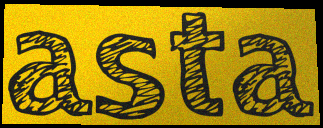
asta